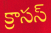
క్రాసస్